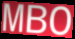
MBO